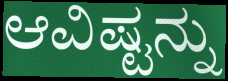
ಆವಿಷ್ಟನ್ನು